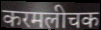
करमलीचक